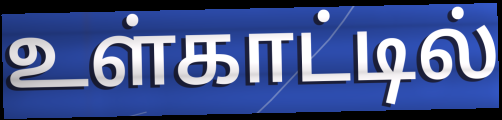
உள்காட்டில்